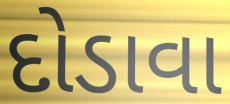
દોડાવા